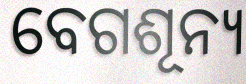
ବେଗଶୂନ୍ୟ